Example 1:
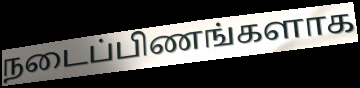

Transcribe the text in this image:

நடைப்பிணங்களாக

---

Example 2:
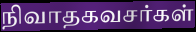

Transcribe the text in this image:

நிவாதகவசர்கள்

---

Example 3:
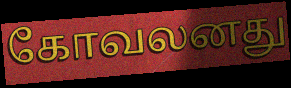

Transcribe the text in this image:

கோவலனது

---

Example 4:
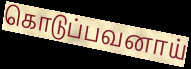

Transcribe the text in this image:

கொடுப்பவனாய்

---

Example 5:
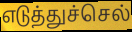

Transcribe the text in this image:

எடுத்துச்செல்